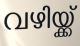
വഴിയ്ക്ക്